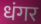
धंगर